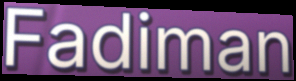
Fadiman